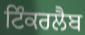
ਟਿੰਕਰਲੈਬ